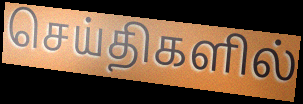
செய்திகளில்